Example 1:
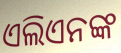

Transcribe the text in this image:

ଏଲିଏନଙ୍କ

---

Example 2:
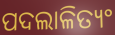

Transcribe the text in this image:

ପଦଲାଳିତ୍ୟଂ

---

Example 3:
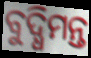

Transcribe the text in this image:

ବୁଦ୍ଧିମନ୍ତ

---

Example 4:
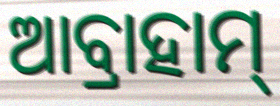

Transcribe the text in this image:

ଆବ୍ରାହାମ୍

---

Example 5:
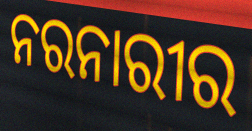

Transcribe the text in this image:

ନରନାରୀର